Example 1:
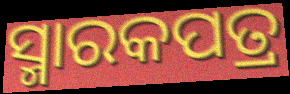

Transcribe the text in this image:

ସ୍ମାରକପତ୍ର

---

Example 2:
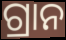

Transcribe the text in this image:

ଗ୍ରାନ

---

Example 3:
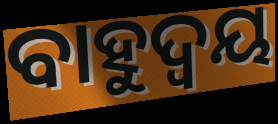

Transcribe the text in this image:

ବାହୁଦ୍ୱୟ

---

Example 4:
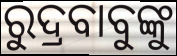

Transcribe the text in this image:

ରୁଦ୍ରବାବୁଙ୍କୁ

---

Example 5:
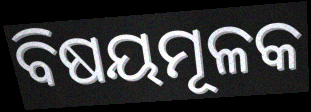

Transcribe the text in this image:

ବିଷୟମୂଳକ